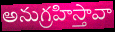
అనుగ్రహిస్తావా